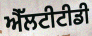
ਐੱਲਟੀਟੀਡੀ